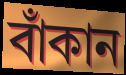
বাঁকান